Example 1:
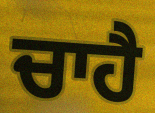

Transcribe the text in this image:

ਚਾਹੈ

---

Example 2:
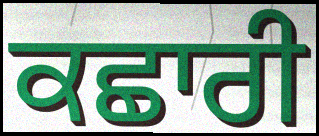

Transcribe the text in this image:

ਕਛਾਰੀ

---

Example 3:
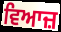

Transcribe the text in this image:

ਵਿਆਜ਼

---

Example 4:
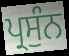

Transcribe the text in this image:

ਪ੍ਰਸੁੰਨ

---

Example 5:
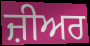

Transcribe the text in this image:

ਜ਼ੀਅਰ